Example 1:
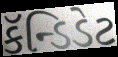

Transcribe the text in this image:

કૅન્ડિડેટ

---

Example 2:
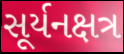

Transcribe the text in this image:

સૂર્યનક્ષત્ર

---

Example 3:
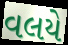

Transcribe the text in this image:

વલયે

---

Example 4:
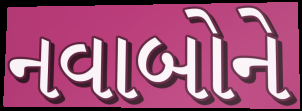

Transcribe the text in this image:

નવાબોને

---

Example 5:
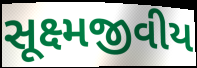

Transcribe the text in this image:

સૂક્ષ્મજીવીય